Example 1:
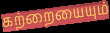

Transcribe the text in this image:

கற்றையையும்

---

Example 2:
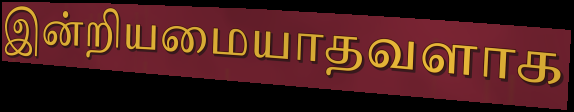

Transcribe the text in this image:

இன்றியமையாதவளாக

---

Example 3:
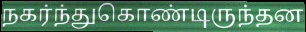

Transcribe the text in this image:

நகர்ந்துகொண்டிருந்தன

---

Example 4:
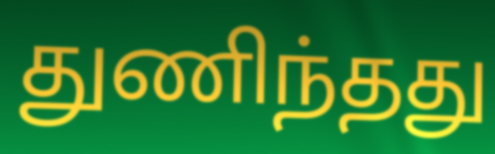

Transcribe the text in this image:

துணிந்தது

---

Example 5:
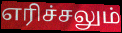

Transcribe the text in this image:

எரிச்சலும்